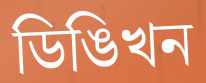
ডিঙিখন